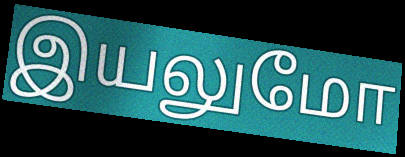
இயலுமோ